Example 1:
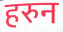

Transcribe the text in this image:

हरुन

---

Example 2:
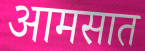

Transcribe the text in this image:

आमसात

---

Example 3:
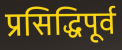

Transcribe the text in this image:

प्रसिद्धिपूर्व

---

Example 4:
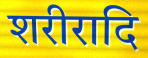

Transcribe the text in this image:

शरीरादि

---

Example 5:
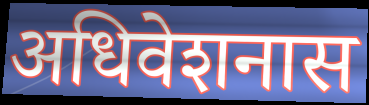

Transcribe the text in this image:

अधिवेशनास